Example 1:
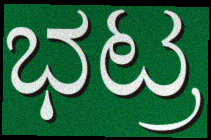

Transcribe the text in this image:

ಭಟ್ರ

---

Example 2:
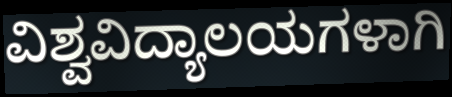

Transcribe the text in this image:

ವಿಶ್ವವಿದ್ಯಾಲಯಗಳಾಗಿ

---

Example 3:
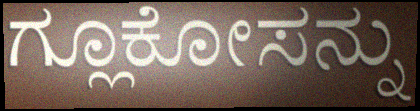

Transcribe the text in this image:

ಗ್ಲೂಕೋಸನ್ನು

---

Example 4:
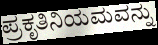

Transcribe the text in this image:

ಪ್ರಕೃತಿನಿಯಮವನ್ನು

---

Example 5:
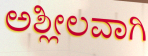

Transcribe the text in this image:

ಅಶ್ಲೀಲವಾಗಿ